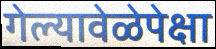
गेल्यावेळेपेक्षा